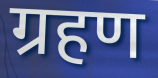
ग्रहण